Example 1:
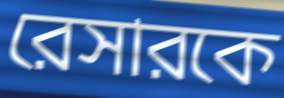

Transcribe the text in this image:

রেসারকে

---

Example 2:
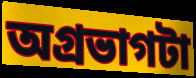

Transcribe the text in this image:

অগ্রভাগটা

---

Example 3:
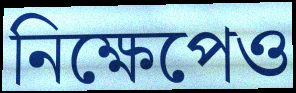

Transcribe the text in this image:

নিক্ষেপেও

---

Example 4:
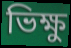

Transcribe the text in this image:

ভিক্ষু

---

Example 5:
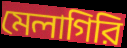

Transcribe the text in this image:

মেলাগিরি